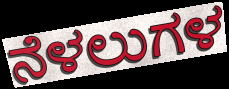
ನೆಳಲುಗಳ